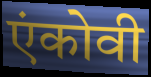
एंकोवी